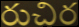
రుచిర